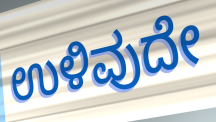
ಉಳಿವುದೇ